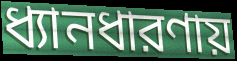
ধ্যানধারণায়